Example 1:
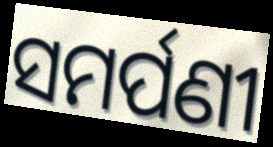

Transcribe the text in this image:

ସମର୍ପଣୀ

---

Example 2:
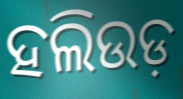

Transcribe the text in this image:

ହଲିଉଡ଼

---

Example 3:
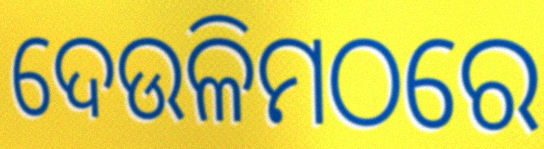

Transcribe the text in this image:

ଦେଉଳିମଠରେ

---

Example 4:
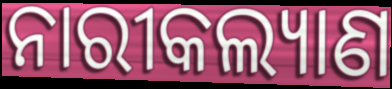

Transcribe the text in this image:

ନାରୀକଲ୍ୟାଣ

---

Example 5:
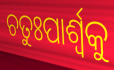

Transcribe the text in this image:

ଚତୁଃପାର୍ଶ୍ୱକୁ